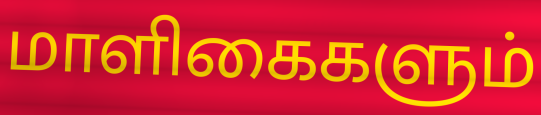
மாளிகைகளும்